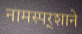
नामस्पर्शाने